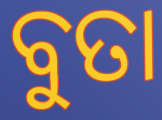
ବୁତା